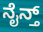
ನೈನ್ತ್